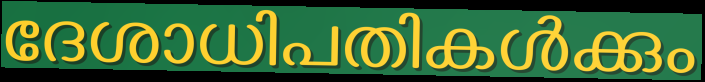
ദേശാധിപതികൾക്കും